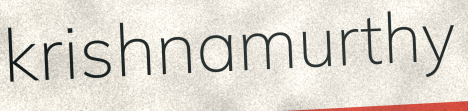
krishnamurthy